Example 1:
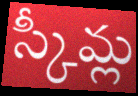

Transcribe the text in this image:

స్కీమ్ల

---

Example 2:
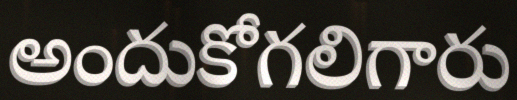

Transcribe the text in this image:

అందుకోగలిగారు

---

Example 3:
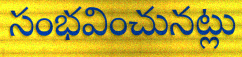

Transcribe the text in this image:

సంభవించునట్లు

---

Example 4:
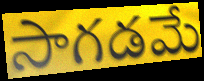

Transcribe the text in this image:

సాగడమే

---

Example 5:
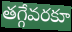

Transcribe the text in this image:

తగ్గేవరకూ